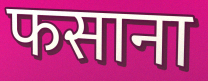
फसाना